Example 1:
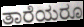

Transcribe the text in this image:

ತಾರೆಯರೂ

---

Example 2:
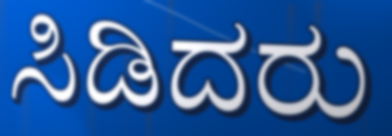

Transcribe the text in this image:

ಸಿಡಿದರು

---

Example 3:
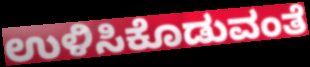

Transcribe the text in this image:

ಉಳಿಸಿಕೊಡುವಂತೆ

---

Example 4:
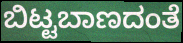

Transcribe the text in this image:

ಬಿಟ್ಟಬಾಣದಂತೆ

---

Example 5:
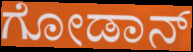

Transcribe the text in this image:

ಗೋಡಾನ್